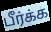
பீர்க்க